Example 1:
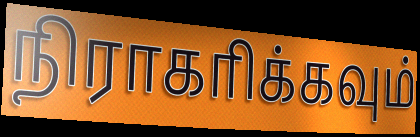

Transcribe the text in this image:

நிராகரிக்கவும்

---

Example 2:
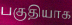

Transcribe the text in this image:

பகுதியாக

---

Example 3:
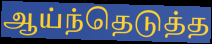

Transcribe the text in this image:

ஆய்ந்தெடுத்த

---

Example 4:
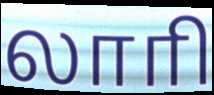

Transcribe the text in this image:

லாரி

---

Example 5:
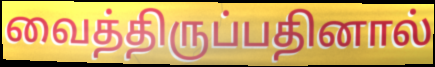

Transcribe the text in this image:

வைத்திருப்பதினால்